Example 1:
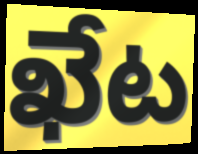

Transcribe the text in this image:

ఖేట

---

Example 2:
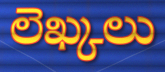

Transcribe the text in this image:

లెఖ్కలు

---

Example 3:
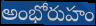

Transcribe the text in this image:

అంభోరుహం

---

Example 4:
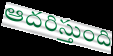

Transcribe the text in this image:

ఆదరిస్తుంది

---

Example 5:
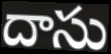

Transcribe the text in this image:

దాసు